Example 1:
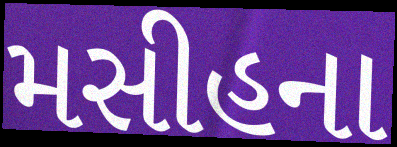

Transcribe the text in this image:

મસીહના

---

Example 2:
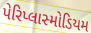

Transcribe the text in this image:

પેરિપ્લાસ્મોડિયમ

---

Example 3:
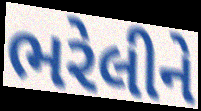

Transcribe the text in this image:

ભરેલીને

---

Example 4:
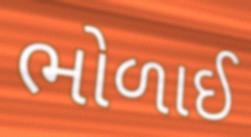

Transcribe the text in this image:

ભોળાઈ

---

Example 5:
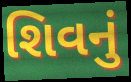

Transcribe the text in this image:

શિવનું